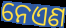
ନେଏଣ